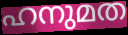
ഹനുമത